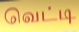
வெட்டி